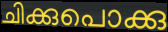
ചിക്കുപൊക്കു